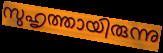
സുഹൃത്തായിരുന്നു